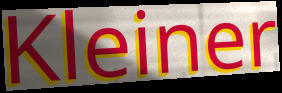
Kleiner